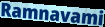
Ramnavami